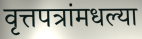
वृत्तपत्रांमधल्या